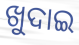
ଖୁଦାଇ